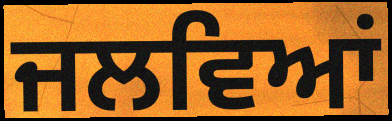
ਜਲਵਿਆਂ